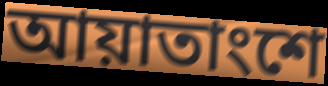
আয়াতাংশে